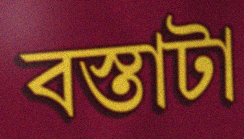
বস্তাটা